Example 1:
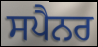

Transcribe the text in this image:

ਸਪੈਨਰ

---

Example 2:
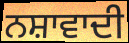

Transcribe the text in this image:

ਨਸ਼ਾਵਾਦੀ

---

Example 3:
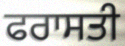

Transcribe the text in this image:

ਫਰਾਸਤੀ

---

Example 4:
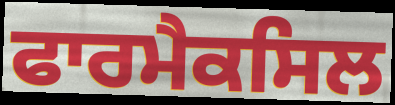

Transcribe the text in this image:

ਫਾਰਮੈਕਸਿਲ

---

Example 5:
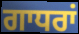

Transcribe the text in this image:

ਗਾਧਰਾਂ